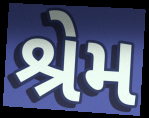
શ્રેમ